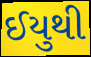
ઈયુથી